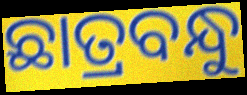
ଛାତ୍ରବନ୍ଧୁ